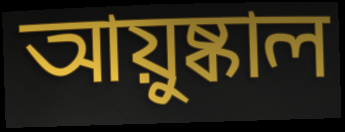
আয়ুষ্কাল